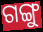
ଗଙ୍ଗୁ